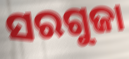
ସରଗୁଜା